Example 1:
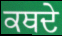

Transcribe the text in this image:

ਕਥਦੇ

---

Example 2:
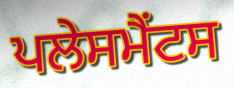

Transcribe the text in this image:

ਪਲੇਸਮੈਂਟਸ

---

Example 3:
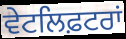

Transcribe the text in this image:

ਵੇਟਲਿਫ਼ਟਰਾਂ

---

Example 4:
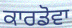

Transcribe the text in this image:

ਕਾਰਡੋਵਾ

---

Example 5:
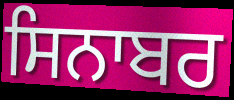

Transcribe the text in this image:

ਸਿਨਾਬਰ